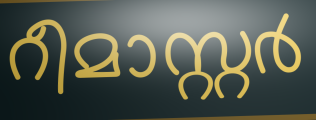
റീമാസ്റ്റർ